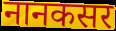
नानकसर